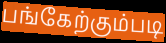
பங்கேற்கும்படி